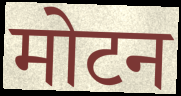
मोटन